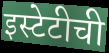
इस्टेटीची